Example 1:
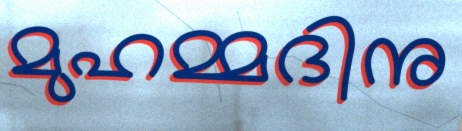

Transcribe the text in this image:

മുഹമ്മദിനു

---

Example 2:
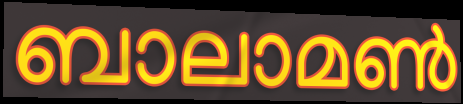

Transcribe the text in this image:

ബാലാമൺ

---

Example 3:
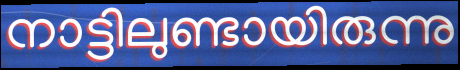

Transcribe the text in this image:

നാട്ടിലുണ്ടായിരുന്നു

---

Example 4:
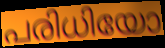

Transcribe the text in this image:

പരിധിയോ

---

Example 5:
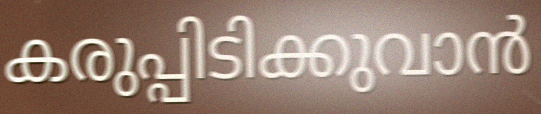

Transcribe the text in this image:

കരുപ്പിടിക്കുവാൻ